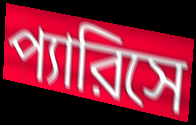
প্যারিসে